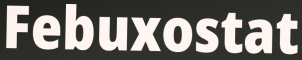
Febuxostat